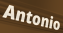
Antonio